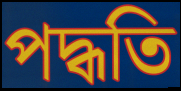
পদ্ধতি